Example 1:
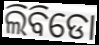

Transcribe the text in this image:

ଲିବିଡୋ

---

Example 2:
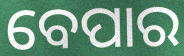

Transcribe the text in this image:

ବେପାର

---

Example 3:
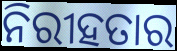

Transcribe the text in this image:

ନିରୀହତାର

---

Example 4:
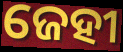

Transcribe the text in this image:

ଜେହୀ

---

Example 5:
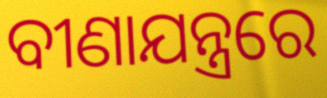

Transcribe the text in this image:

ବୀଣାଯନ୍ତ୍ରରେ